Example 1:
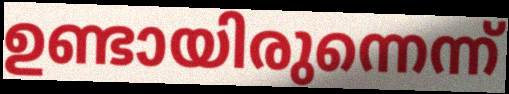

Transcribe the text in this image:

ഉണ്ടായിരുന്നെന്ന്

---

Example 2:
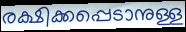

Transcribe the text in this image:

രക്ഷിക്കപ്പെടാനുള്ള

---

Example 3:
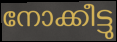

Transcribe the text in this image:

നോക്കീട്ടു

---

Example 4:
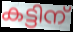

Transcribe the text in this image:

കട്ടിന്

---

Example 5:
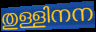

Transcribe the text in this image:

തുള്ളിനന